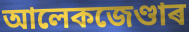
আলেকজেণ্ডাৰ